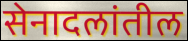
सेनादलांतील